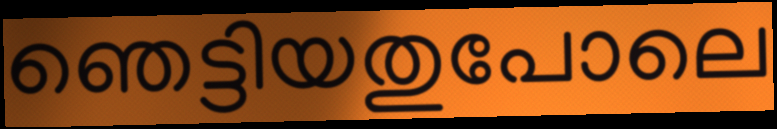
ഞെട്ടിയതുപോലെ